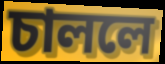
চাললে